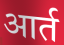
आर्त